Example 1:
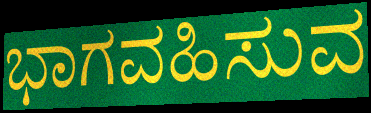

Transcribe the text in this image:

ಭಾಗವಹಿಸುವ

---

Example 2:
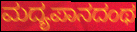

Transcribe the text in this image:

ಮದ್ಯಪಾನದಂಥ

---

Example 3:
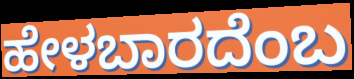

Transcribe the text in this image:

ಹೇಳಬಾರದೆಂಬ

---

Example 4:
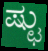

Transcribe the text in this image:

ಷ್ಟು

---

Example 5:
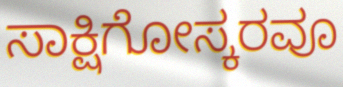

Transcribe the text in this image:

ಸಾಕ್ಷಿಗೋಸ್ಕರವೂ